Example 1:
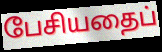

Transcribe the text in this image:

பேசியதைப்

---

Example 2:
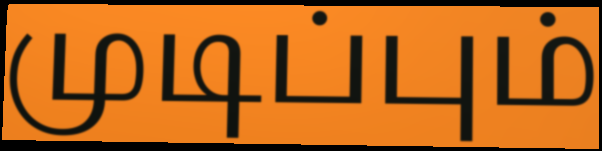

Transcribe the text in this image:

முடிப்பும்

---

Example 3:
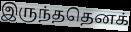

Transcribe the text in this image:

இருந்ததெனக்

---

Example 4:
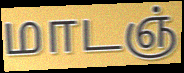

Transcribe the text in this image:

மாடஞ்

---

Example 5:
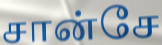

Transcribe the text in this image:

சான்சே